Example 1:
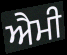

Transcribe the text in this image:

ਐਮੀ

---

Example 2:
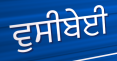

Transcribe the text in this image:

ਵੁਸੀਬੇਈ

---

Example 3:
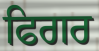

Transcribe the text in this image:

ਫਿਗਰ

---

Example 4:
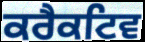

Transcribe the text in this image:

ਕਰੈਕਟਿਵ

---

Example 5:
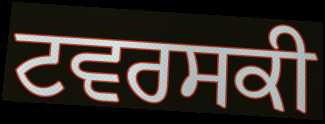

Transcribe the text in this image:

ਟਵਰਸਕੀ